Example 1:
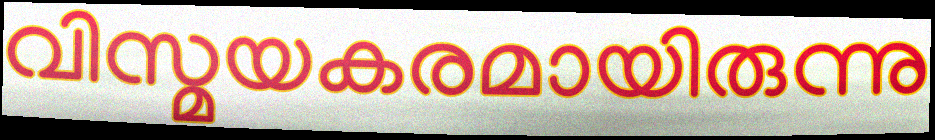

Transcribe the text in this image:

വിസ്മയകരമായിരുന്നു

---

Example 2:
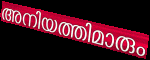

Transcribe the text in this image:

അനിയത്തിമാരും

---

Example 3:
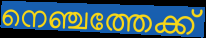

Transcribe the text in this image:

നെഞ്ചത്തേക്ക്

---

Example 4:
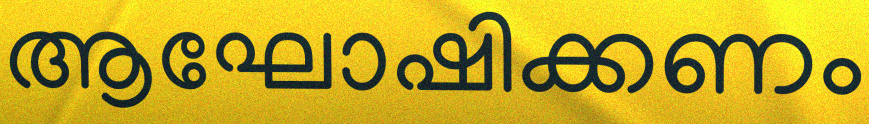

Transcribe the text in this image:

ആഘോഷിക്കണം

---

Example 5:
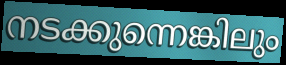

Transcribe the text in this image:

നടക്കുന്നെങ്കിലും